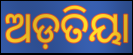
ଅଡ଼ତିୟା